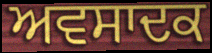
ਅਵਸਾਦਕ